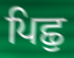
ਪਿਛੁ